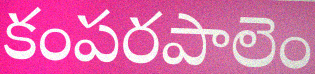
కంపరపాలెం